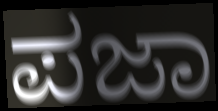
ಪಜಾ